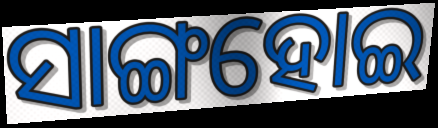
ସାଙ୍ଗହୋଇ